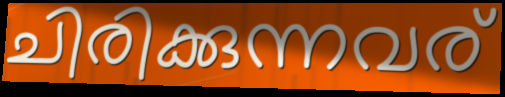
ചിരിക്കുന്നവര്